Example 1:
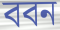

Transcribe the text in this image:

ববন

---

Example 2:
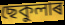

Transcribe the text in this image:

ছেকুলাৰ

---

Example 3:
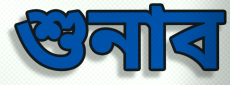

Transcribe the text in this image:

শুনাব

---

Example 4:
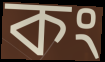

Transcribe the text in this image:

কং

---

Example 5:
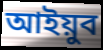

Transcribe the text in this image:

আইয়ুব